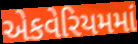
એકવેરિયમમાં